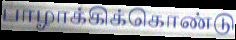
பாழாக்கிக்கொண்டு